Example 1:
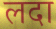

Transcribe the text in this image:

लदा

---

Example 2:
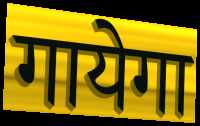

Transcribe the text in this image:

गायेगा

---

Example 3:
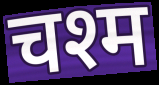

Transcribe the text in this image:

चश्म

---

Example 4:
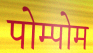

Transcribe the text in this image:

पोम्पोम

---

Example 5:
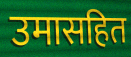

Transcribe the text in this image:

उमासहित